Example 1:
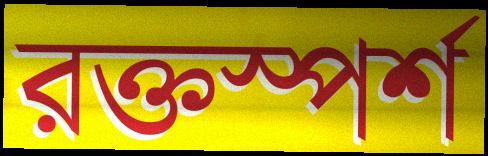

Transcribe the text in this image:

রক্তস্পর্শ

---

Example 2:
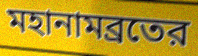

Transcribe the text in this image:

মহানামব্রতের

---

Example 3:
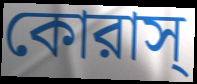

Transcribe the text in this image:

কোরাস্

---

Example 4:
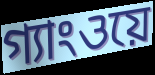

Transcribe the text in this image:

গ্যাংওয়ে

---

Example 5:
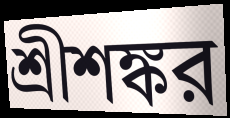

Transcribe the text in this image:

শ্রীশঙ্কর